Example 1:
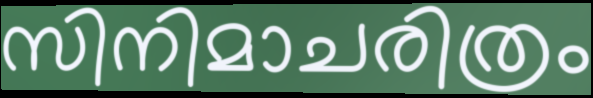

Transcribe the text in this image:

സിനിമാചരിത്രം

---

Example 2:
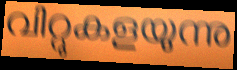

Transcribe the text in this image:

വിറ്റുകളയുന്നു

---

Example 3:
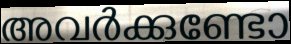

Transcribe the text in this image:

അവർക്കുണ്ടോ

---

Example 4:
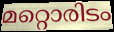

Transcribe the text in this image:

മറ്റൊരിടം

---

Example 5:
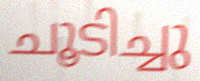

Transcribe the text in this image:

ചൂടിച്ചു